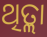
ଥିତ୍ଲା